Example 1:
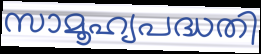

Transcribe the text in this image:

സാമൂഹ്യപദ്ധതി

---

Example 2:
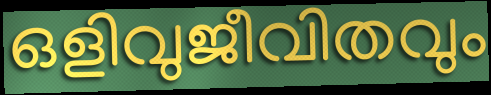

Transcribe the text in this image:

ഒളിവുജീവിതവും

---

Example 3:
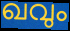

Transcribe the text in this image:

ഖവും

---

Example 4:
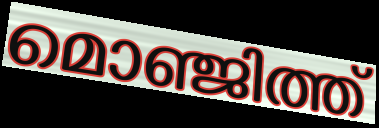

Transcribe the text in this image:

മൊഞ്ജിത്ത്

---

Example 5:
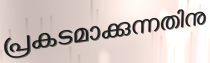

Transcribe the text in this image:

പ്രകടമാക്കുന്നതിനു